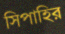
সিপাহির